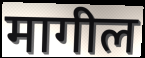
मागील